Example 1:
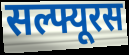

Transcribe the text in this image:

सल्फ्यूरस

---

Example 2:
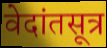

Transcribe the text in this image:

वेदांतसूत्र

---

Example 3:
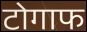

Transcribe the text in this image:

टोगाफ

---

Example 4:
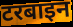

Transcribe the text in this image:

टरबाइन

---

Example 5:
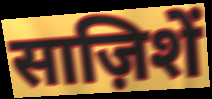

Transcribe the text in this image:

साज़िशें